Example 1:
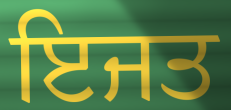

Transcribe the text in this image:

ਇਜਤ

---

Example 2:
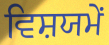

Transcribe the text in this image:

ਵਿਸ਼ਯਮੇਂ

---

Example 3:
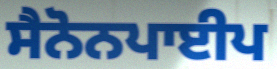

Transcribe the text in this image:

ਸੈਨੋਨਪਾਈਪ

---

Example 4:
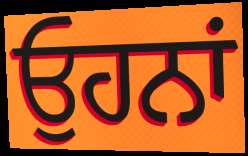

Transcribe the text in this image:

ਓੁਹਨਾਂ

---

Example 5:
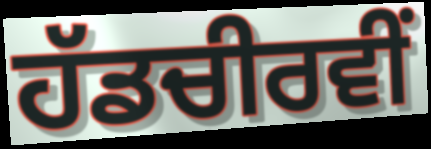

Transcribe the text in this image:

ਹੱਡਚੀਰਵੀਂ